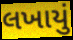
લખાયું